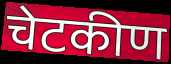
चेटकीण